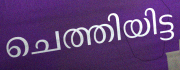
ചെത്തിയിട്ട